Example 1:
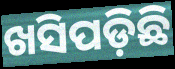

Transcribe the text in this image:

ଖସିପଡ଼ିଛି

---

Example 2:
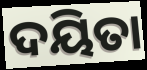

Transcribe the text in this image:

ଦୟିତା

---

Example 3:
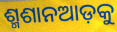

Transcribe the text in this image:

ଶ୍ମଶାନଆଡ଼କୁ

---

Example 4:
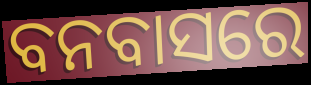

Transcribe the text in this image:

ବନବାସରେ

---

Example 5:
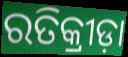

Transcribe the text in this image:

ରତିକ୍ରୀଡ଼ା